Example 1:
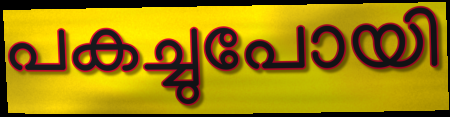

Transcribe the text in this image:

പകച്ചുപോയി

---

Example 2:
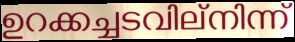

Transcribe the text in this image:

ഉറക്കച്ചടവില്നിന്ന്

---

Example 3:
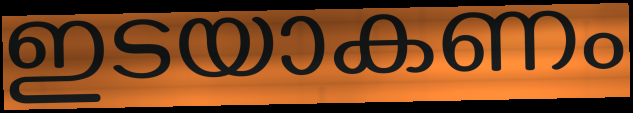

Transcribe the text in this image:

ഇടയാകണം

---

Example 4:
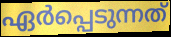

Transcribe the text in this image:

ഏർപ്പെടുന്നത്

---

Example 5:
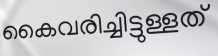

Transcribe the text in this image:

കൈവരിച്ചിട്ടുള്ളത്